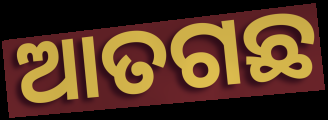
ଆତଗଛ